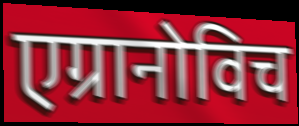
एग्रानोविच